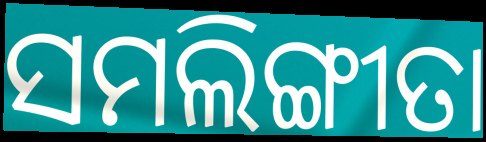
ସମଲିଙ୍ଗୀତା